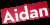
Aidan